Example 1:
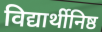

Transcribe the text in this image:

विद्यार्थीनिष्ठ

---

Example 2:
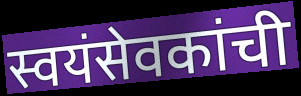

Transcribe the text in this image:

स्वयंसेवकांची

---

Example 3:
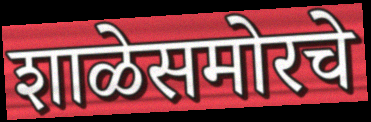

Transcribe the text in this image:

शाळेसमोरचे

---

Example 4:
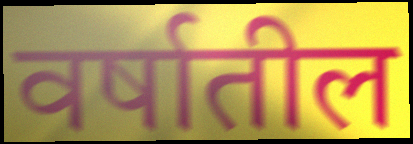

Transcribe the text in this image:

वर्षातील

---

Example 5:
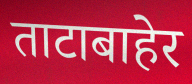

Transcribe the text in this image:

ताटाबाहेर